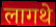
लागथे